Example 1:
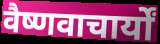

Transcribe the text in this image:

वैष्णवाचार्यों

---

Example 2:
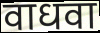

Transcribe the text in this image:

वाधवा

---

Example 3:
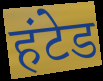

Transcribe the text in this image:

हंटेड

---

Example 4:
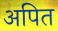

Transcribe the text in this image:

अपित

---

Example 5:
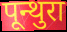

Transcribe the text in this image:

पून्थुरा